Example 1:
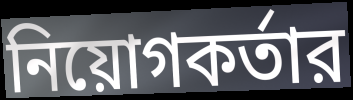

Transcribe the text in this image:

নিয়োগকর্তার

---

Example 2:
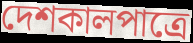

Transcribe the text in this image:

দেশকালপাত্রে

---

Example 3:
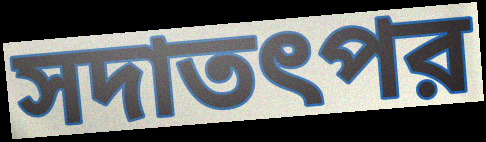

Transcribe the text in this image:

সদাতৎপর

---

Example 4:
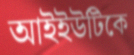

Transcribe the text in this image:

আইইউটিকে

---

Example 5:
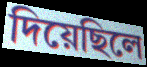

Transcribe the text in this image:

দিয়েছিলে